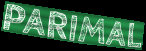
PARIMAL